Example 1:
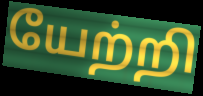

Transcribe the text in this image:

யேற்றி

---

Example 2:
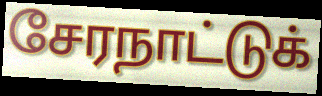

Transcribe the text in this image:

சேரநாட்டுக்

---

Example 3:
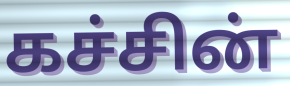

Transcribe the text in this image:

கச்சின்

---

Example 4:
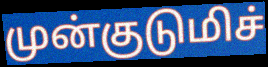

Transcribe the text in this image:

முன்குடுமிச்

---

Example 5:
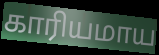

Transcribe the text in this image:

காரியமாய